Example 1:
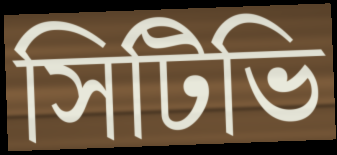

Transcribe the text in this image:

সিটিভি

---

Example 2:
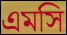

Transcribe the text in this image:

এমসি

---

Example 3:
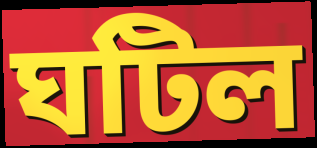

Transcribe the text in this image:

ঘটিল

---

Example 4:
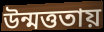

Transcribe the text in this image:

উন্মত্ততায়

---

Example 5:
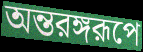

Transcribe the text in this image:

অন্তরঙ্গরূপে